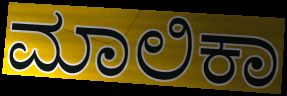
ಮಾಲಿಕಾ